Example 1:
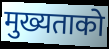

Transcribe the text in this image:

मुख्यताको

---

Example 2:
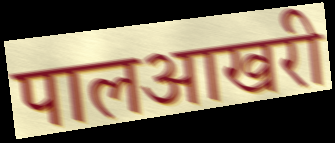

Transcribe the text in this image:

पालआखरी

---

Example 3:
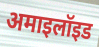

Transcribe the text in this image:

अमाइलॉइड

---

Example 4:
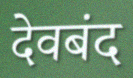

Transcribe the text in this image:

देवबंद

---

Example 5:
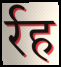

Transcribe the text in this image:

र्रह